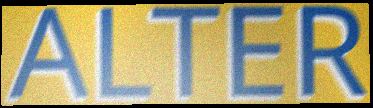
ALTER